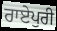
ਰਾਏਪੁਰੀ